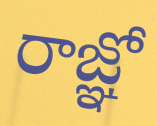
రాజ్ఞో